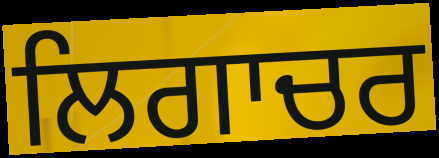
ਲਿਗਾਚਰ